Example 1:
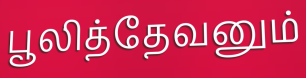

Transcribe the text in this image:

பூலித்தேவனும்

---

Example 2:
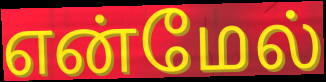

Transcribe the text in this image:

என்மேல்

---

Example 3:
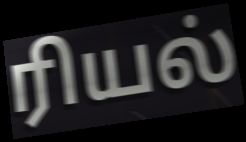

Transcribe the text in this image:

ரியல்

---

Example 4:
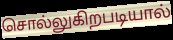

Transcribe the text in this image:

சொல்லுகிறபடியால்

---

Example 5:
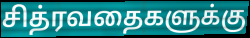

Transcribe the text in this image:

சித்ரவதைகளுக்கு